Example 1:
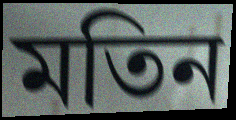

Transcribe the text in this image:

মতিন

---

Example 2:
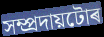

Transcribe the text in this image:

সম্প্ৰদায়টোৰ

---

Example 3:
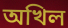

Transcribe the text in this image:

অখিল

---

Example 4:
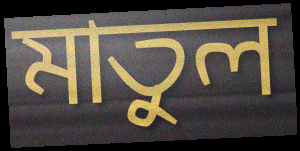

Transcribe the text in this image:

মাতুল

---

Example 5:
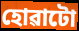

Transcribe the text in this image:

হোৱাটো